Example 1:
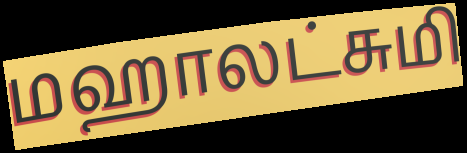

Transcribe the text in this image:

மஹாலட்சுமி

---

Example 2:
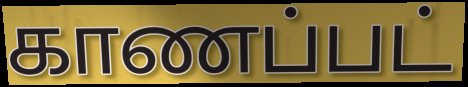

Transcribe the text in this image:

காணப்பட்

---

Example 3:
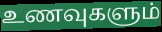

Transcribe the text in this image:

உணவுகளும்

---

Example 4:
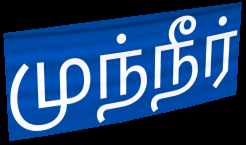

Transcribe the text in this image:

முந்நீர்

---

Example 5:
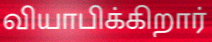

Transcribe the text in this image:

வியாபிக்கிறார்